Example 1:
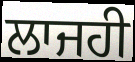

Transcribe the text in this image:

ਲਾਜਹੀ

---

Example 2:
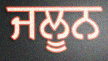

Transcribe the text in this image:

ਜਲੂਨ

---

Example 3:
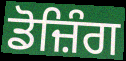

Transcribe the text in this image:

ਡੋਜ਼ਿੰਗ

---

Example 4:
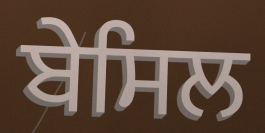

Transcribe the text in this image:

ਬੇਸਿਲ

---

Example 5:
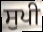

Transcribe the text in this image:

ਸੁਪੀ